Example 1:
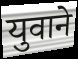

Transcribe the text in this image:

युवाने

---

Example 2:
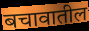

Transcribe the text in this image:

बचावातील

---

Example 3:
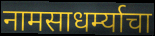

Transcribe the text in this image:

नामसाधर्म्याचा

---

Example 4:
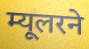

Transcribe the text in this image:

म्यूलरने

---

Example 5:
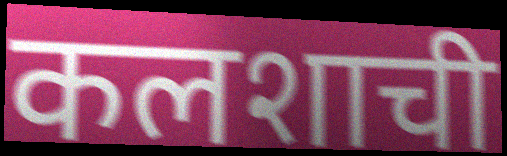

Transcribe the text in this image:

कलशाची